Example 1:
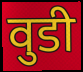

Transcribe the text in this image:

वुडी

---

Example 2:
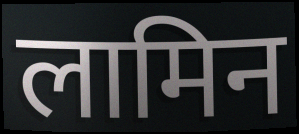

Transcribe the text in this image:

लामिन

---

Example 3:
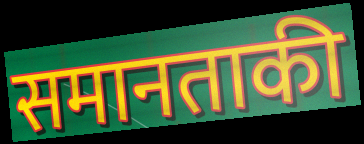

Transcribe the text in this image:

समानताकी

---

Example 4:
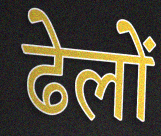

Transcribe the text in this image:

ढेलों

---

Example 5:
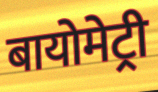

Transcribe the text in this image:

बायोमेट्री